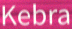
Kebra